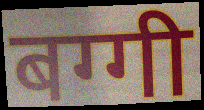
बग्गी